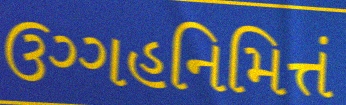
ઉગ્ગહનિમિત્તં